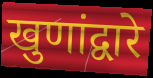
खुणांद्वारे